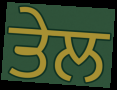
ਤੇਲ